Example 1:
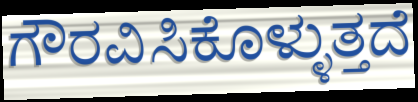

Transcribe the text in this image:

ಗೌರವಿಸಿಕೊಳ್ಳುತ್ತದೆ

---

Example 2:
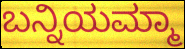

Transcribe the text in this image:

ಬನ್ನಿಯಮ್ಮಾ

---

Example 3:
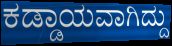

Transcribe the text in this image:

ಕಡ್ಡಾಯವಾಗಿದ್ದು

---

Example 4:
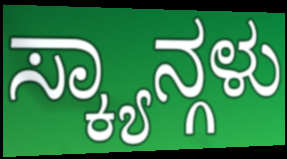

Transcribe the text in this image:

ಸ್ಕ್ಯಾನ್ಗಳು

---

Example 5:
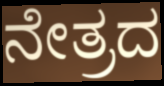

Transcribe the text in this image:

ನೇತ್ರದ